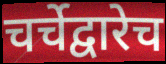
चर्चेद्वारेच